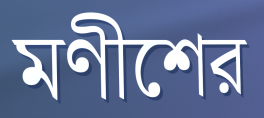
মণীশের